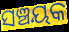
ସଞ୍ଚୟକ